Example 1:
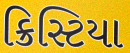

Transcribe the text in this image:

ક્રિસ્ટિયા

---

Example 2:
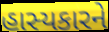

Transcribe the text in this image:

હાસ્યકારને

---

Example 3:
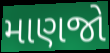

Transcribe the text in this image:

માણજો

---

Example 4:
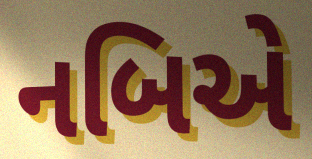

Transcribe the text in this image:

નબિએ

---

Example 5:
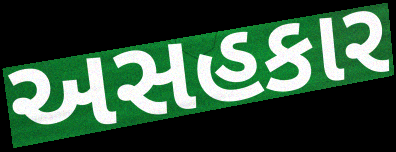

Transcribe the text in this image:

અસહકાર